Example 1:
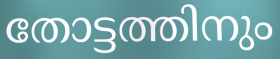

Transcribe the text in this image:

തോട്ടത്തിനും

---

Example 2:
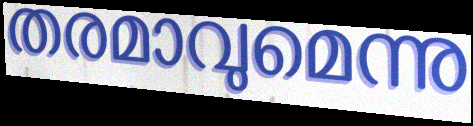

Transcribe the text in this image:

തരമാവുമെന്നു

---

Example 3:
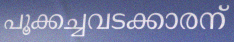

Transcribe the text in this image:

പൂക്കച്ചവടക്കാരന്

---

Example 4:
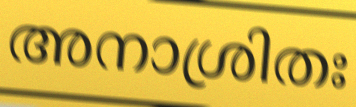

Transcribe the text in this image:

അനാശ്രിതഃ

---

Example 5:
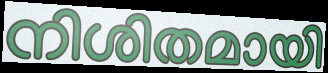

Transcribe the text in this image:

നിശിതമായി